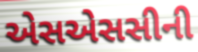
એસએસસીની